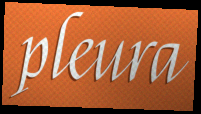
pleura